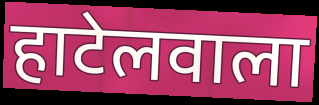
हाटेलवाला